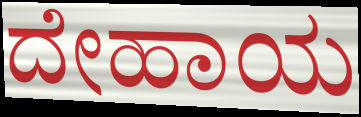
ದೇಹಾಯ